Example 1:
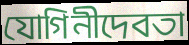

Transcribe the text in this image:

যোগিনীদেবতা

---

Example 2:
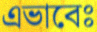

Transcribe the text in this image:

এভাবেঃ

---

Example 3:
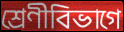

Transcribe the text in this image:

শ্রেণীবিভাগে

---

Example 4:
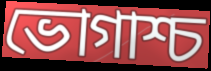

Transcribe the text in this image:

ভোগাশ্চ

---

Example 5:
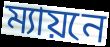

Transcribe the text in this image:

ম্যায়নে